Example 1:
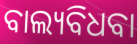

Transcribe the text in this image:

ବାଲ୍ୟବିଧବା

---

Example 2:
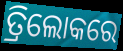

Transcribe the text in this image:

ତ୍ରିଲୋକରେ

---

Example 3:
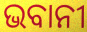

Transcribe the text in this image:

ଭବାନୀ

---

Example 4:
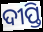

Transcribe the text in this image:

ଦୀପ୍ତି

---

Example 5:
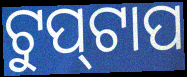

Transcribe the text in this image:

ଟୁପ୍‌ଟାପ